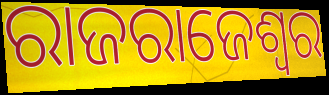
ରାଜରାଜେଶ୍ଵର